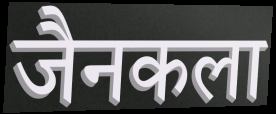
जैनकला